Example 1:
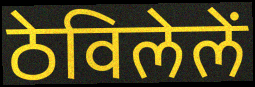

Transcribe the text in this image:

ठेविलेलें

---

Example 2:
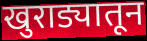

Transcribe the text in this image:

खुराड्यातून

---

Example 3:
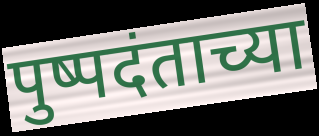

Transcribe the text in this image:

पुष्पदंताच्या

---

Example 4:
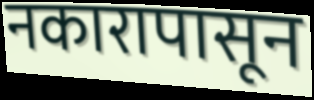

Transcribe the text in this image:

नकारापासून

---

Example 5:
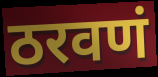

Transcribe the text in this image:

ठरवणं